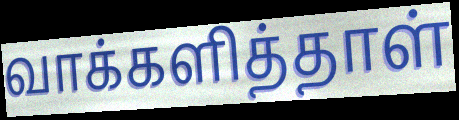
வாக்களித்தாள்